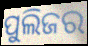
ପୁଲିଜର